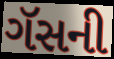
ગૅસની